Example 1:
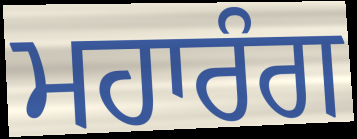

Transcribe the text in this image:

ਮਹਾਰੰਗ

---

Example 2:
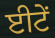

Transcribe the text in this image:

ਈਟੇਂ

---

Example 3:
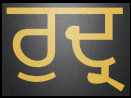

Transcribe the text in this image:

ਰੁਦ੍ਰ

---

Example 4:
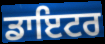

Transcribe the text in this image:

ਡਾਇਟਰ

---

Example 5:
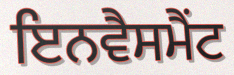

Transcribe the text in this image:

ਇਨਵੈਸਮੈਂਟ